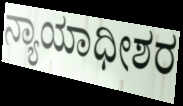
ನ್ಯಾಯಾಧೀಶರ